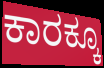
ಕಾರಕ್ಕೂ